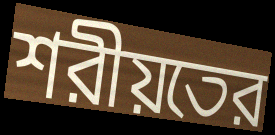
শরীয়তের